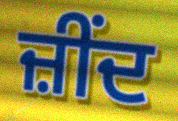
ਜ਼ੀਂਦ